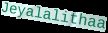
Jeyalalithaa